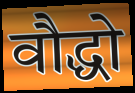
वौद्धो